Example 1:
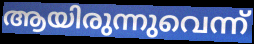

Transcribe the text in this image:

ആയിരുന്നുവെന്ന്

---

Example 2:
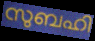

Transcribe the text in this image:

സുബഹി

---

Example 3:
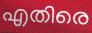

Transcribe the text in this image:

എതിരെ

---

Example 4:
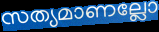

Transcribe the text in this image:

സത്യമാണല്ലോ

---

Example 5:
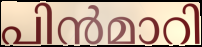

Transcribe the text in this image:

പിൻമാറി